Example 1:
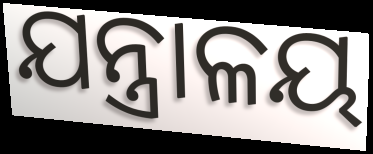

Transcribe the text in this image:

ଯନ୍ତ୍ରାଳୟ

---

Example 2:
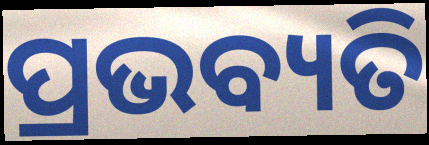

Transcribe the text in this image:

ପ୍ରଭବ୍ୟତି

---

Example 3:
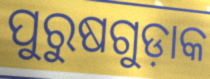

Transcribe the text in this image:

ପୁରୁଷଗୁଡ଼ାକ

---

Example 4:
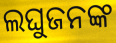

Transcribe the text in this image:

ଲଘୁଜନଙ୍କ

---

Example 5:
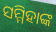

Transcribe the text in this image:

ସମ୍ମିହାଙ୍କ